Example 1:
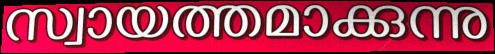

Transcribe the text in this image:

സ്വായത്തമാക്കുന്നു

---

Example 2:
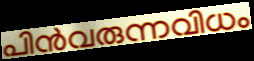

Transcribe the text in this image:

പിൻവരുന്നവിധം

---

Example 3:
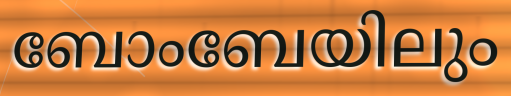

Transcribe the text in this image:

ബോംബേയിലും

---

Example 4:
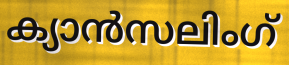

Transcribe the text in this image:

ക്യാൻസലിംഗ്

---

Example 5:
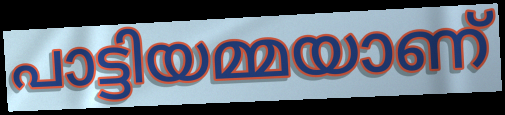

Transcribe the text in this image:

പാട്ടിയമ്മയാണ്